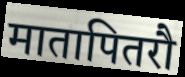
मातापितरौ